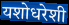
यशोधरेशी